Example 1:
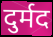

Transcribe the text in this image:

दुर्मद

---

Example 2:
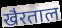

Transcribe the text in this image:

खैरताल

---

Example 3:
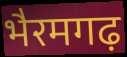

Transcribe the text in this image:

भैरमगढ़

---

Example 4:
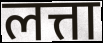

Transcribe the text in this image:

लत्ता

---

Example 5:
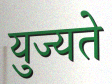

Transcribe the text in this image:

युज्यते